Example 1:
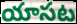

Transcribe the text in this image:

యాసట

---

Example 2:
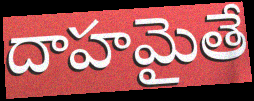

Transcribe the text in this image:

దాహమైతే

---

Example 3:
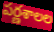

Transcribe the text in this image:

పర్ణశాలల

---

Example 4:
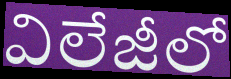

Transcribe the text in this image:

విలేజీలో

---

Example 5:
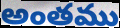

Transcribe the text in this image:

అంతము